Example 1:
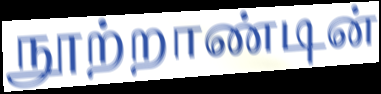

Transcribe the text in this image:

நூற்றாண்டின்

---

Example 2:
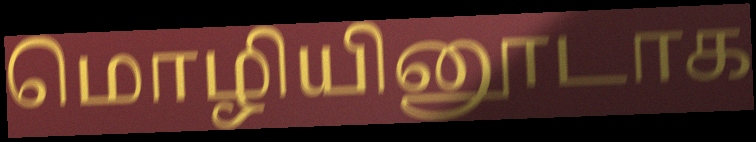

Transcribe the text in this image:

மொழியினூடாக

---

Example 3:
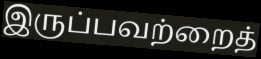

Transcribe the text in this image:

இருப்பவற்றைத்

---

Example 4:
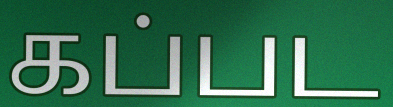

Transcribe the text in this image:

கப்பட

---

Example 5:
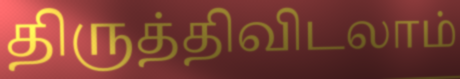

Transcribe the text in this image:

திருத்திவிடலாம்